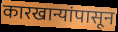
कारखान्यांपासून